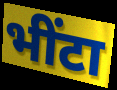
भींटा